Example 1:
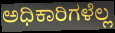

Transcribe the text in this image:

ಅಧಿಕಾರಿಗಳೆಲ್ಲ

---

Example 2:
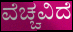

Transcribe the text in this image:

ವೆಚ್ಚವಿದೆ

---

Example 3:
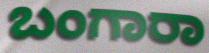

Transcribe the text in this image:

ಬಂಗಾರಾ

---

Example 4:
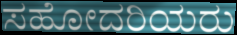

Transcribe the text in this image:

ಸಹೋದರಿಯರು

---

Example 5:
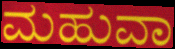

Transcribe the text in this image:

ಮಹುವಾ